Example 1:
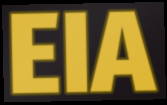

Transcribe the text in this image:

EIA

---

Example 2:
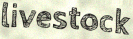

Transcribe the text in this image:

livestock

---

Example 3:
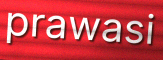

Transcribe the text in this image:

prawasi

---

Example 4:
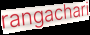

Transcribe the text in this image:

rangachari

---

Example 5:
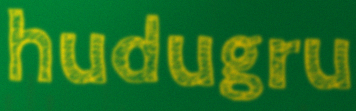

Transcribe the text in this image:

hudugru